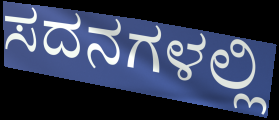
ಸದನಗಳಲ್ಲಿ